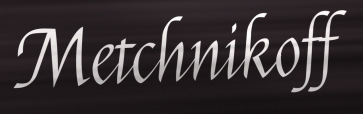
Metchnikoff